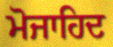
ਮੋਜਾਹਿਦ